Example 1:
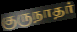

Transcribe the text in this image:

குருநாதர்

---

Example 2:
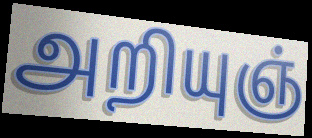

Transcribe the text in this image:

அறியுஞ்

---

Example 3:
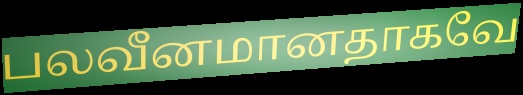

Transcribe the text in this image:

பலவீனமானதாகவே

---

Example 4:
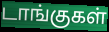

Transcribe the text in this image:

டாங்குகள்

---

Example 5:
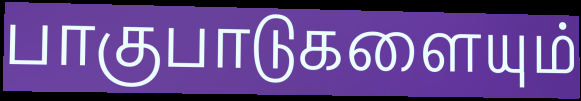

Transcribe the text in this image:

பாகுபாடுகளையும்